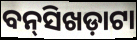
ବନ୍‌ସିଖଡ଼ାଟା